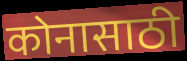
कोनासाठी